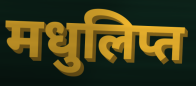
मधुलिप्त